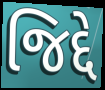
જિદ્દે